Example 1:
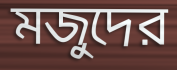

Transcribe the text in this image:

মজুদের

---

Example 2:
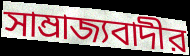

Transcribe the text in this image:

সাম্রাজ্যবাদীর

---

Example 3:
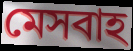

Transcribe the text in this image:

মেসবাহ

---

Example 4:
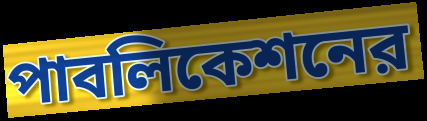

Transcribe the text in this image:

পাবলিকেশনের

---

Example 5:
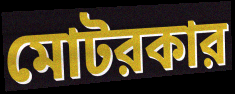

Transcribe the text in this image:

মোটরকার